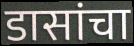
डासांचा